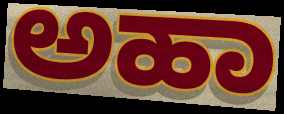
ಅಹಾ